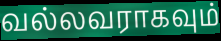
வல்லவராகவும்